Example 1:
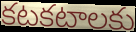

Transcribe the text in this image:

కటకటాలకు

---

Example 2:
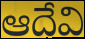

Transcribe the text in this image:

ఆదేవి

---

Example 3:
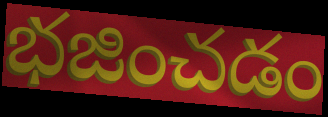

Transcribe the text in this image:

భజించడం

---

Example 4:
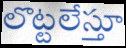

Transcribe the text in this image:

లొట్టలేస్తూ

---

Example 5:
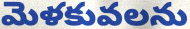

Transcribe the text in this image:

మెళకువలను